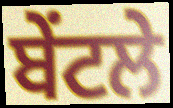
ਬੇਂਟਲੇ